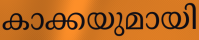
കാക്കയുമായി